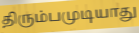
திரும்பமுடியாது